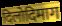
दिलोदिमाग